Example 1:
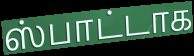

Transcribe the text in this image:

ஸ்பாட்டாக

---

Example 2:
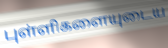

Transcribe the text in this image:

புள்ளிகளையுடைய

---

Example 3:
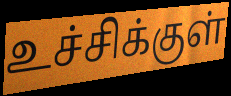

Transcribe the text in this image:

உச்சிக்குள்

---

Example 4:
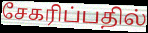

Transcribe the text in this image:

சேகரிப்பதில்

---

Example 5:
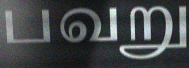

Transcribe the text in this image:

பவறு